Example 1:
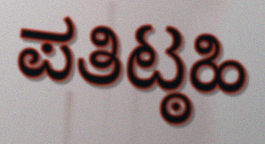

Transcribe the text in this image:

ಪತಿಟ್ಠಹಿ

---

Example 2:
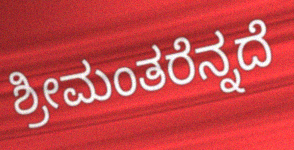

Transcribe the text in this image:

ಶ್ರೀಮಂತರೆನ್ನದೆ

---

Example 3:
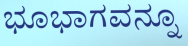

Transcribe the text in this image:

ಭೂಭಾಗವನ್ನೂ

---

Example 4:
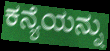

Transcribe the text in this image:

ಕನ್ಯೆಯನ್ನು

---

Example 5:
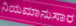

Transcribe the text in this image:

ನಿಯಮಾನುಸಾರ